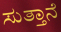
ಸುತ್ತಾನೆ